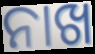
ନାଖ